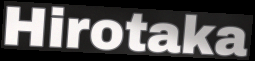
Hirotaka